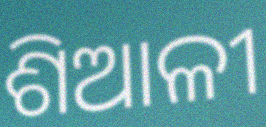
ଶିଆଳୀ